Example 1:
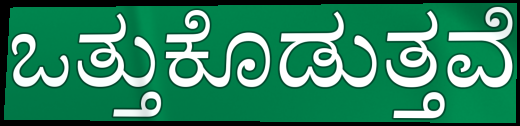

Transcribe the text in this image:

ಒತ್ತುಕೊಡುತ್ತವೆ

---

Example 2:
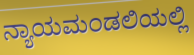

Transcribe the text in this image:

ನ್ಯಾಯಮಂಡಲಿಯಲ್ಲಿ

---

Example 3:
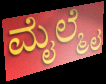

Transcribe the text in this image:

ಮೈಲ್ಮೈ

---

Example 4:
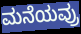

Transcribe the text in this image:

ಮನೆಯವ್ರು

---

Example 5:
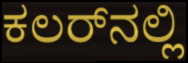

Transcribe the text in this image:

ಕಲರ್‌ನಲ್ಲಿ